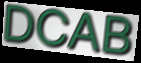
DCAB